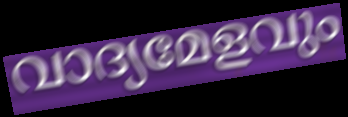
വാദ്യമേളവും